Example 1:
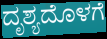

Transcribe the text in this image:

ದೃಶ್ಯದೊಳಗೆ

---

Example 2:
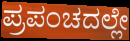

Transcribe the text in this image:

ಪ್ರಪಂಚದಲ್ಲೇ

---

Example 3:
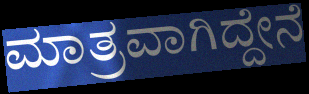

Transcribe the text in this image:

ಮಾತ್ರವಾಗಿದ್ದೇನೆ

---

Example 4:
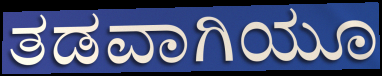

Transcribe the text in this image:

ತಡವಾಗಿಯೂ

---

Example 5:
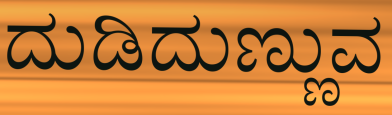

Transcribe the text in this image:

ದುಡಿದುಣ್ಣುವ